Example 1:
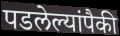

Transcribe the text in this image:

पडलेल्यांपैकी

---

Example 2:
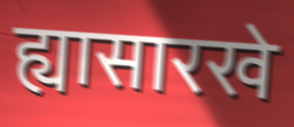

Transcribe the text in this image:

ह्यासारखे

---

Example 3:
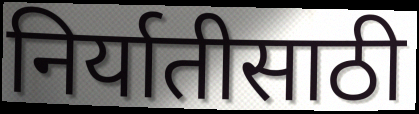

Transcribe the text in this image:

निर्यातीसाठी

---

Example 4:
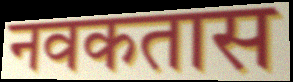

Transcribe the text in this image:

नवकतास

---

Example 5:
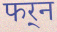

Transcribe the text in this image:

फर्न